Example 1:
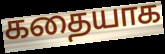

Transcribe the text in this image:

கதையாக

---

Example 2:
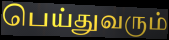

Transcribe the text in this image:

பெய்துவரும்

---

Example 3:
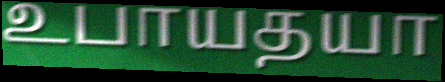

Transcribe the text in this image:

உபாயதயா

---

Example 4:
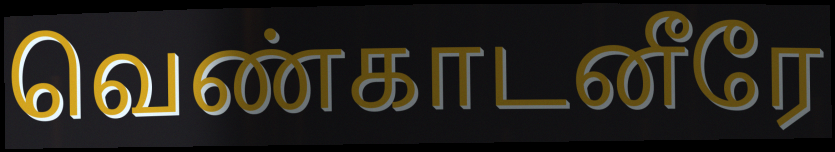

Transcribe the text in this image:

வெண்காடனீரே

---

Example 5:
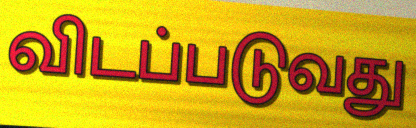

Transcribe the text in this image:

விடப்படுவது